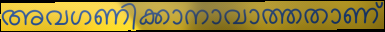
അവഗണിക്കാനാവാത്തതാണ്